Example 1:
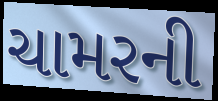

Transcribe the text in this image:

ચામરની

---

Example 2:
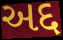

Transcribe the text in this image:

અદ્દ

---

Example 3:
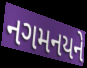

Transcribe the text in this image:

નગમનયને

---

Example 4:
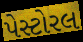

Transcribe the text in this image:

પેસ્ટોરલ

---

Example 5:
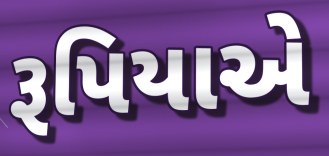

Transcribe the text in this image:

રૂપિયાએ